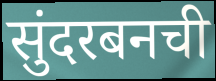
सुंदरबनची